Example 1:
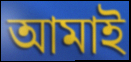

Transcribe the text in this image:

আমাই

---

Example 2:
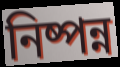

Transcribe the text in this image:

নিষ্পন্ন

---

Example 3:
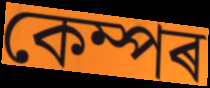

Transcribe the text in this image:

কেম্পৰ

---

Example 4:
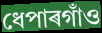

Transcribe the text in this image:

ধেপাৰগাঁও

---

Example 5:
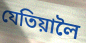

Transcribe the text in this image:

যেতিয়ালৈ